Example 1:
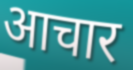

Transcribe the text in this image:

आचार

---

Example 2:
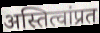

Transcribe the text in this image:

अस्तित्वांप्रत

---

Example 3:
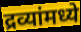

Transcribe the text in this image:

द्रव्यांमध्ये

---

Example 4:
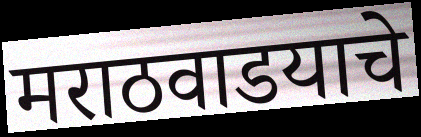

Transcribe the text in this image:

मराठवाडयाचे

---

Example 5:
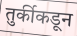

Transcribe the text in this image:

तुर्कीकडून